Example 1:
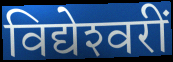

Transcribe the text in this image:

विद्येश्वरीं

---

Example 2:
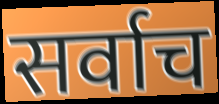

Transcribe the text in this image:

सर्वाच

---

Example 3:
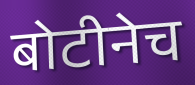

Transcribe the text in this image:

बोटीनेच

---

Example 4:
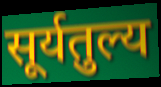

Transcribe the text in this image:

सूर्यतुल्य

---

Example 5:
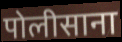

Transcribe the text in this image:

पोलीसाना